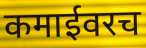
कमाईवरच